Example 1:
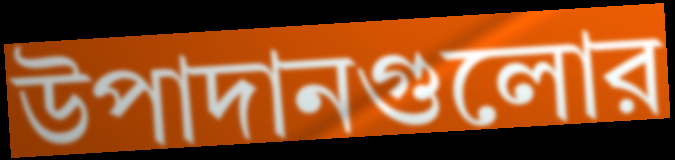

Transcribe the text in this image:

উপাদানগুলোর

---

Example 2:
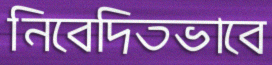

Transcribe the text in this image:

নিবেদিতভাবে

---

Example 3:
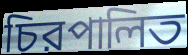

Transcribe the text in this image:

চিরপালিত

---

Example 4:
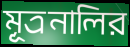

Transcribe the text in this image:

মূত্রনালির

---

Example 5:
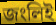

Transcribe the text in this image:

জংলিই